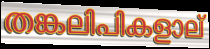
തങ്കലിപികളാല്